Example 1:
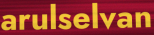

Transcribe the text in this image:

arulselvan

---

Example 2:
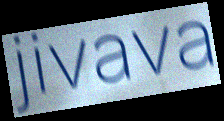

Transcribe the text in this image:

jivava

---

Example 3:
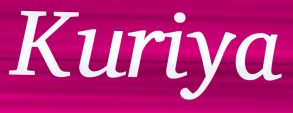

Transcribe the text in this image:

Kuriya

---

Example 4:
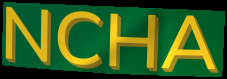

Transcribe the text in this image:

NCHA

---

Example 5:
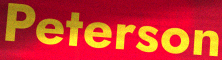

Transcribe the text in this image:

Peterson